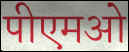
पीएमओ